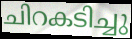
ചിറകടിച്ചു